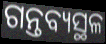
ଗନ୍ତବ୍ୟସ୍ଥଳ